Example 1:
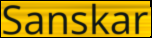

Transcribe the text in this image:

Sanskar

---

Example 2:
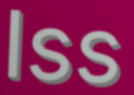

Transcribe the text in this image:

Iss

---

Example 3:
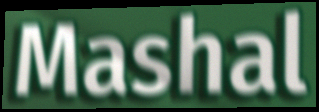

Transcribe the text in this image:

Mashal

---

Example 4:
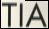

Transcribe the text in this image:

TIA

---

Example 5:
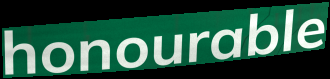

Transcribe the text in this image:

honourable